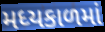
મધ્યકાળમાં